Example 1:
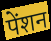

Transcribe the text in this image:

पेंशन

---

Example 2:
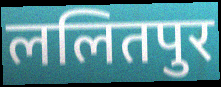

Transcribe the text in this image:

ललितपुर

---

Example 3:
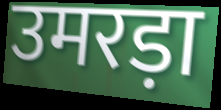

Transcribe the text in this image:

उमरड़ा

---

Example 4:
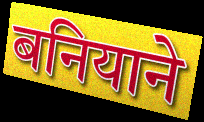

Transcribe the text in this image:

बनियाने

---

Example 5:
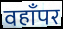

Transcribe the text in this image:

वहाँपर